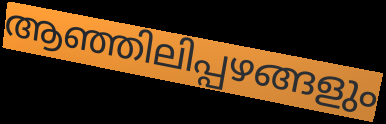
ആഞ്ഞിലിപ്പഴങ്ങളും